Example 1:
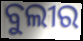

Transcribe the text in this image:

ବୁଲୀର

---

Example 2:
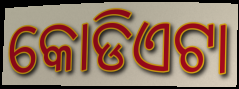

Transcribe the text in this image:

କୋଡିଏଟା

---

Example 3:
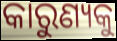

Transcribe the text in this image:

କାରୁଣ୍ୟକୁ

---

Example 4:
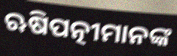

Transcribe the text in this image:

ଋଷିପତ୍ନୀମାନଙ୍କ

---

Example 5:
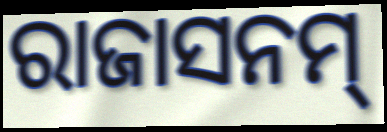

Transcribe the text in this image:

ରାଜାସନମ୍